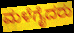
ಮಳೆಗೈದರು